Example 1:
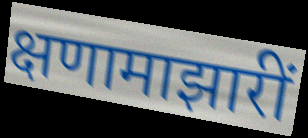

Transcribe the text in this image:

क्षणामाझारीं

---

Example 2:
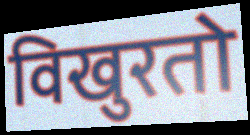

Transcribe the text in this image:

विखुरतो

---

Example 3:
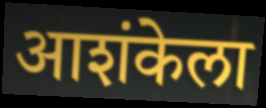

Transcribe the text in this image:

आशंकेला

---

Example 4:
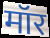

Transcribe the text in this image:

मॉर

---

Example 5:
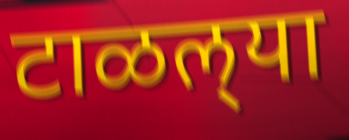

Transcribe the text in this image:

टाळल्या